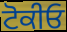
ਟੋਕੀਓ